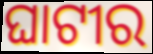
ଘାଟୀର